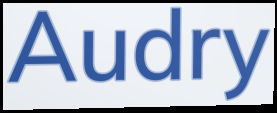
Audry